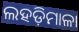
ଲହଡ଼ିମାଳା